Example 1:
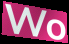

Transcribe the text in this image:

Wo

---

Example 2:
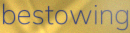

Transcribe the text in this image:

bestowing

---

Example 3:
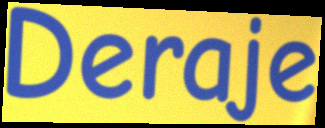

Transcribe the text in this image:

Deraje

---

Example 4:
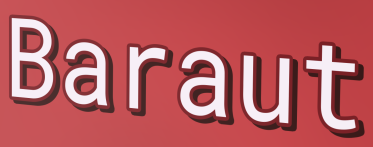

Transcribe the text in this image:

Baraut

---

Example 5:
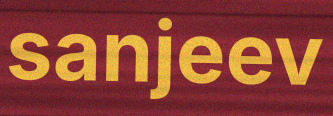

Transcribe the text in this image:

sanjeev